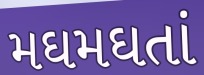
મઘમઘતાં